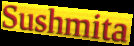
Sushmita